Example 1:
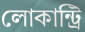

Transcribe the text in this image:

লোকান্ট্রি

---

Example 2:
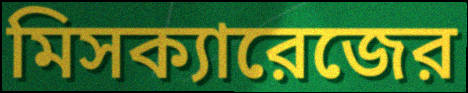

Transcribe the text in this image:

মিসক্যারেজের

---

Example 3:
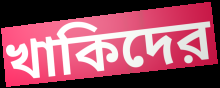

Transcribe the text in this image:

খাকিদের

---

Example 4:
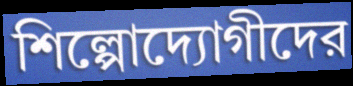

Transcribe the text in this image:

শিল্পোদ্যোগীদের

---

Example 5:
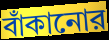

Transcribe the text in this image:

বাঁকানোর